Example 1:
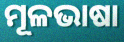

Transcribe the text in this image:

ମୂଳଭାଷା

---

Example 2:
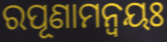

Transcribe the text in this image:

ରପୂଣାମନ୍ଵୟଃ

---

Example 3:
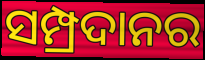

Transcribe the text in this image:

ସମ୍ପ୍ରଦାନର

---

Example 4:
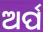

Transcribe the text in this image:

ଅର୍ପ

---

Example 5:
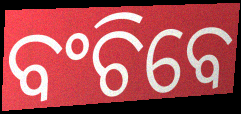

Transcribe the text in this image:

ବଂଚିବେ